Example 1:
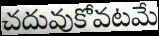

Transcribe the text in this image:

చదువుకోవటమే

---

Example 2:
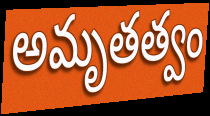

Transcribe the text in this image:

అమృతత్వం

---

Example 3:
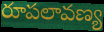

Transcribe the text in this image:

రూపలావణ్య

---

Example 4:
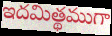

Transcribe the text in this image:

ఇదమిత్థముగా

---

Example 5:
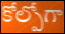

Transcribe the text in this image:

కోల్పోగా